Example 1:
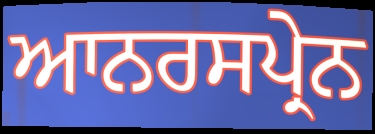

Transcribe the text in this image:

ਆਨਰਸਪ੍ਰੇਨ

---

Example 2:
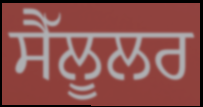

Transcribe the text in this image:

ਸੈੱਲੂਲਰ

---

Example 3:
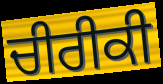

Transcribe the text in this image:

ਚੀਰੀਕੀ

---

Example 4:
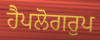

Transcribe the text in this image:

ਹੈਪਲੋਗਰੁਪ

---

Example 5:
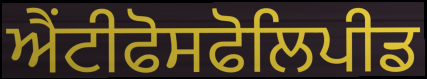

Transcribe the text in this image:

ਐਂਟੀਫੋਸਫੋਲਿਪੀਡ